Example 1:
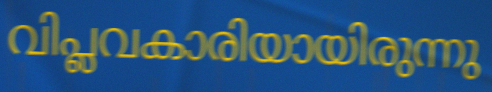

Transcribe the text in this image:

വിപ്ലവകാരിയായിരുന്നു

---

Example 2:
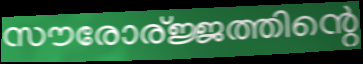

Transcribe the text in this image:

സൗരോര്ജ്ജത്തിന്റെ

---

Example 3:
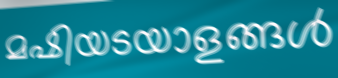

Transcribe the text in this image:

മഷിയടയാളങ്ങൾ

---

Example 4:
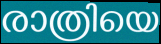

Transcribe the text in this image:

രാത്രിയെ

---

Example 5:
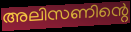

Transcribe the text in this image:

അലിസണിന്റെ